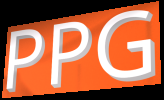
PPG